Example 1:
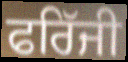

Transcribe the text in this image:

ਫਰਿੱਜੀ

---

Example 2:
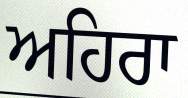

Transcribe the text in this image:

ਅਹਿਰਾ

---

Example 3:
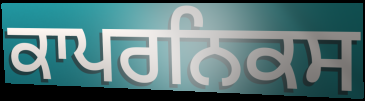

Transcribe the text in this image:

ਕਾਪਰਨਿਕਸ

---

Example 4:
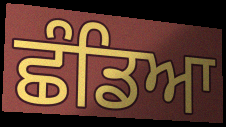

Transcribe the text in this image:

ਛੰਡਿਆ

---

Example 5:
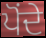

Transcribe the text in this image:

ਪੋਂਦੇ